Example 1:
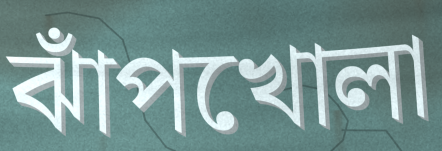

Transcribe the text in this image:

ঝাঁপখোলা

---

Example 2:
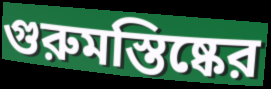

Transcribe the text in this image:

গুরুমস্তিষ্কের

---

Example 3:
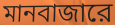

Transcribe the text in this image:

মানবাজারে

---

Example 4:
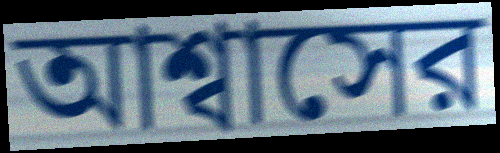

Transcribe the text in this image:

আশ্বাসের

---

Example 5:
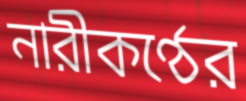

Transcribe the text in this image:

নারীকণ্ঠের